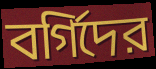
বর্গিদের